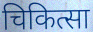
चिकित्सा